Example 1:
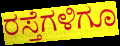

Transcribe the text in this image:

ರಸ್ತೆಗಳಿಗೂ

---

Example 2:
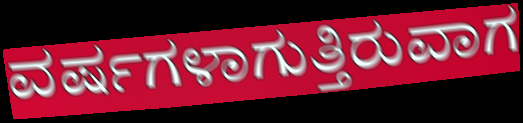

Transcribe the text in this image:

ವರ್ಷಗಳಾಗುತ್ತಿರುವಾಗ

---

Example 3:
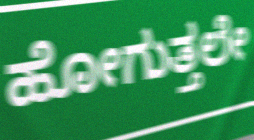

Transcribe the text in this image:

ಹೋಗುತ್ತಲೇ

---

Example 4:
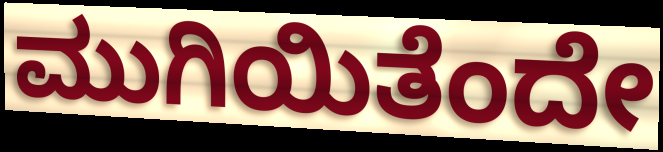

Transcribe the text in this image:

ಮುಗಿಯಿತೆಂದೇ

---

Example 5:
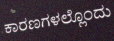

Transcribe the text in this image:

ಕಾರಣಗಳಲ್ಲೊಂದು